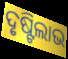
ଦୃଷ୍ଟିଲାଭ